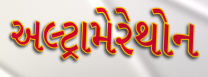
અલ્ટ્રામેરેથોન